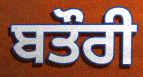
ਬਤੌਰੀ